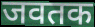
जवतक